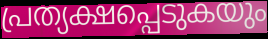
പ്രത്യക്ഷപ്പെടുകയും